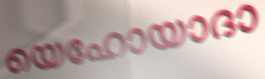
യെഹോയാദാ